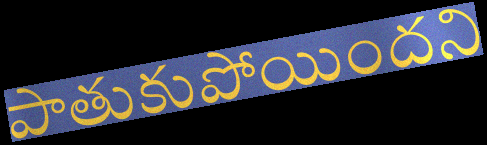
పాతుకుపోయిందని